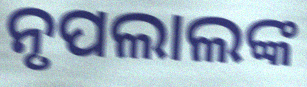
ନୃପଲାଲଙ୍କ